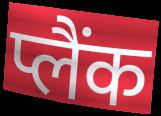
प्लैंक